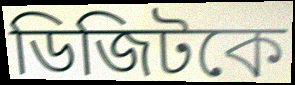
ডিজিটকে